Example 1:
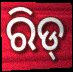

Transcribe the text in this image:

ରିଡ୍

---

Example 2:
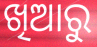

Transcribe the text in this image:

ଖିଆରୁ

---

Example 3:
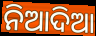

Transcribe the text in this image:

ନିଆଦିଆ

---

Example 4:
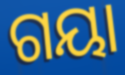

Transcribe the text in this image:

ଗୟା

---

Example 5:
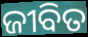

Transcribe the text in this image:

ଜୀବିତ